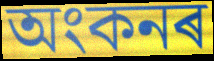
অংকনৰ